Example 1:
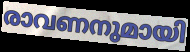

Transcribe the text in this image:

രാവണനുമായി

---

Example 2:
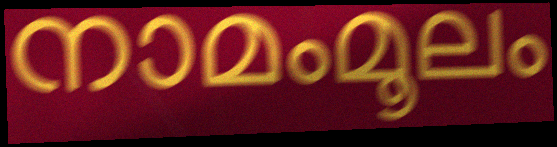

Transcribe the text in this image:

നാമംമൂലം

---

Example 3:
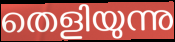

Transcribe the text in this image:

തെളിയുന്നു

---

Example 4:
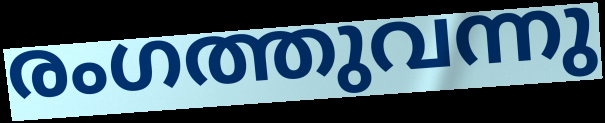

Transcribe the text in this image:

രംഗത്തുവന്നു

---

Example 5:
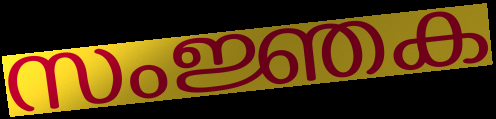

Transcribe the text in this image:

സംജ്ഞക